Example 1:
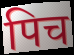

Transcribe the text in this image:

पिच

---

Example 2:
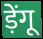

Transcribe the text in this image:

ड़ेंगू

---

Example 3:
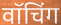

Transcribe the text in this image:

वॉचिंग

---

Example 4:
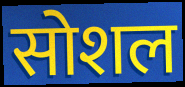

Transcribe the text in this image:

सोशल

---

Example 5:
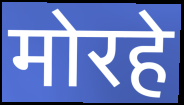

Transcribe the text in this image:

मोरहे